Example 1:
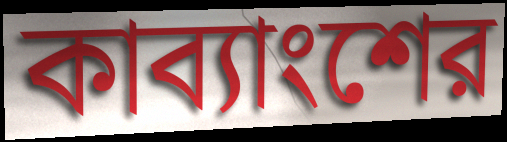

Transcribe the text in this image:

কাব্যাংশের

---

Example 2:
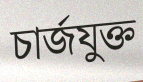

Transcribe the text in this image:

চার্জযুক্ত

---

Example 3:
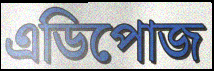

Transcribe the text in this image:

এডিপোজ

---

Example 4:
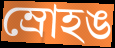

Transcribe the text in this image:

ম্রোহঙ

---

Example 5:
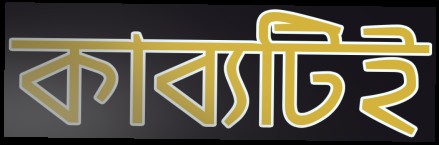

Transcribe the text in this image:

কাব্যটিই